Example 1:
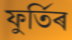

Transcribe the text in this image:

ফুৰ্তিৰ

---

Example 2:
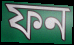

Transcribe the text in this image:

ফন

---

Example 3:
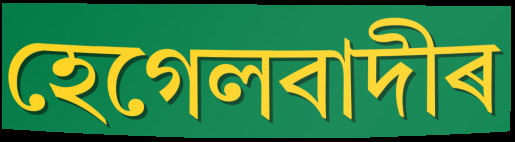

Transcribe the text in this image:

হেগেলবাদীৰ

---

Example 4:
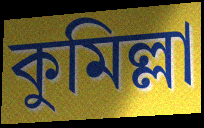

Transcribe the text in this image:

কুমিল্লা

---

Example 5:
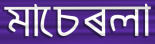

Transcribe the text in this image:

মাচেৰলা